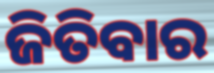
ଜିତିବାର